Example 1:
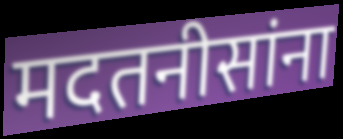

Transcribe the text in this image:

मदतनीसांना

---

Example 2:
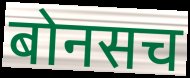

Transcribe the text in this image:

बोनसच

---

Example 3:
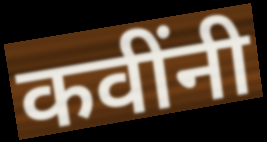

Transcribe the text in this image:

कवींनी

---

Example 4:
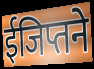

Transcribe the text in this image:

ईजिप्तने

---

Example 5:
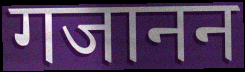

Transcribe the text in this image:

गजानन